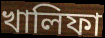
খালিফা